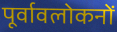
पूर्वावलोकनों